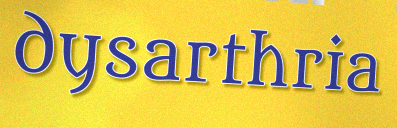
dysarthria